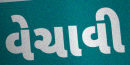
વેચાવી